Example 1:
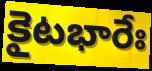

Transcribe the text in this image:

కైటభారేః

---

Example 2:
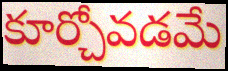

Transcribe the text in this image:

కూర్చోవడమే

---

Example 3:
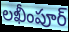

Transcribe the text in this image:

లఖీంపూర్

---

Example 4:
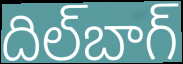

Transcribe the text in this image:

దిల్‌బాగ్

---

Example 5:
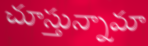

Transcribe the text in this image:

చూస్తున్నామా